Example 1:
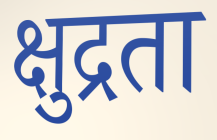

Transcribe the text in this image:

क्षुद्रता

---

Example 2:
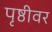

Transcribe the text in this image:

पृष्ठीवर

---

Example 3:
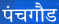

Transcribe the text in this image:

पंचगौड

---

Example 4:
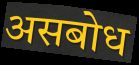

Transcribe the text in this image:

असबोध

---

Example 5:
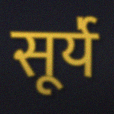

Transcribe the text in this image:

सूर्य॑